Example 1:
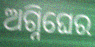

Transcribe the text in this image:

ଅଗ୍ନିଘେର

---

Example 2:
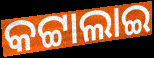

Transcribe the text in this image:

କଟ୍ଟାଲାଇ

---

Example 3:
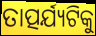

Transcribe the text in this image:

ତାତ୍ପର୍ଯ୍ୟଟିକୁ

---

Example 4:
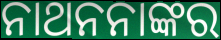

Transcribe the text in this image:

ନାଥନନାଙ୍କର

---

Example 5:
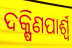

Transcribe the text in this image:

ଦକ୍ଷିଣପାର୍ଶ୍ବ